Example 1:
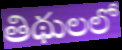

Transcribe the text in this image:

తిథులలో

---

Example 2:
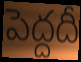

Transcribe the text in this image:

పెద్దదీ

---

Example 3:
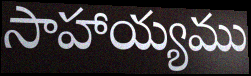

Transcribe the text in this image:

సాహాయ్యము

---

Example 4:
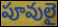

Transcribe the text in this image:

పూవులై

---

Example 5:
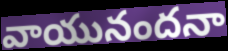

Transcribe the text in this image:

వాయునందనా